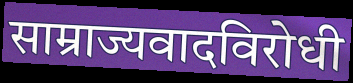
साम्राज्यवादविरोधी